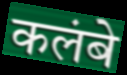
कलंबे